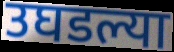
उघडल्या